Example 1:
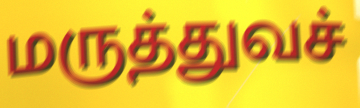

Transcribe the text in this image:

மருத்துவச்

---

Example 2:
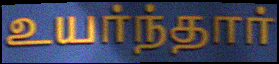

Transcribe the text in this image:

உயர்ந்தார்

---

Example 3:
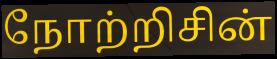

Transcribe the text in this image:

நோற்றிசின்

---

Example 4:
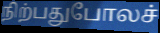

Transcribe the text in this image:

நிற்பதுபோலச்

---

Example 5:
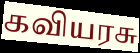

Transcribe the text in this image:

கவியரசு